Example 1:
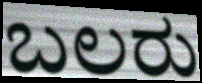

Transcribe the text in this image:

ಬಲರು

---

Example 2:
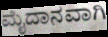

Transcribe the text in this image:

ಮೈದಾನವಾಗಿ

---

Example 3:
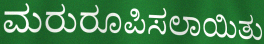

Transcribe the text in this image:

ಮರುರೂಪಿಸಲಾಯಿತು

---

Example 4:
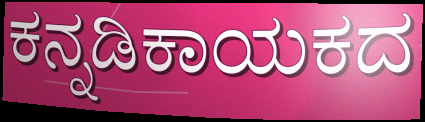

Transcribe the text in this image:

ಕನ್ನಡಿಕಾಯಕದ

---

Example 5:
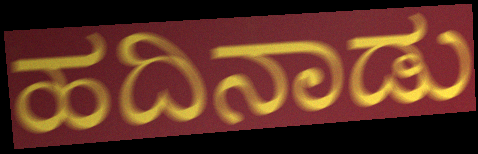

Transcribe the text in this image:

ಹದಿನಾಡು